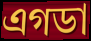
এগডা